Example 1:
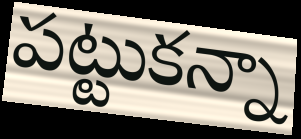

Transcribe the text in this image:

పట్టుకన్నా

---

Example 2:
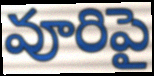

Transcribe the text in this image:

వూరిపై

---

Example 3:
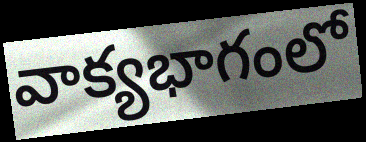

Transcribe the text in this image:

వాక్యభాగంలో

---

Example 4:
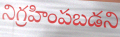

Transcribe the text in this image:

నిగ్రహింపబడని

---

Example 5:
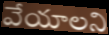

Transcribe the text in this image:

వేయాలని